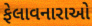
ફેલાવનારાઓ